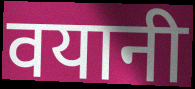
वयानी